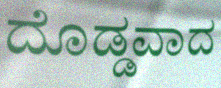
ದೊಡ್ಡವಾದ